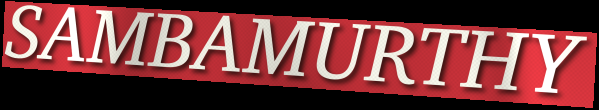
SAMBAMURTHY